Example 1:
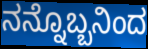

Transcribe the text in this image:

ನನ್ನೊಬ್ಬನಿಂದ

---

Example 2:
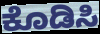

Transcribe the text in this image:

ಕೊಡಿಸಿ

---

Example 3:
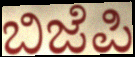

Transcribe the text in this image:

ಬಿಜೆಪಿ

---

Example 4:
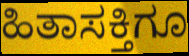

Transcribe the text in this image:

ಹಿತಾಸಕ್ತಿಗೂ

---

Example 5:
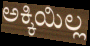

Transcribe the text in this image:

ಅಕ್ಕಿಯಿಲ್ಲ